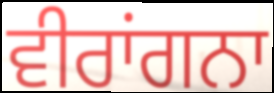
ਵੀਰਾਂਗਨਾ